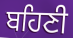
ਬਹਿਣੀ